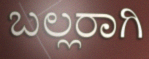
ಬಲ್ಲರಾಗಿ